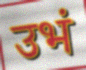
उभं